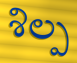
శిల్ప